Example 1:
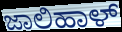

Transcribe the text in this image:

ಜಾಲಿಹಾಳ್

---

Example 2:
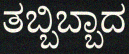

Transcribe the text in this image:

ತಬ್ಬಿಬ್ಬಾದ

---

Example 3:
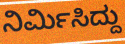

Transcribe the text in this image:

ನಿರ್ಮಿಸಿದ್ದು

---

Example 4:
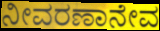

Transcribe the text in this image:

ನೀವರಣಾನೇವ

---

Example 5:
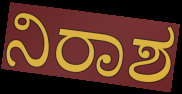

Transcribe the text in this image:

ನಿರಾಶ